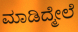
ಮಾಡಿದ್ಮೇಲೆ